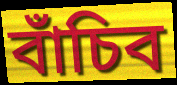
বাঁচিব